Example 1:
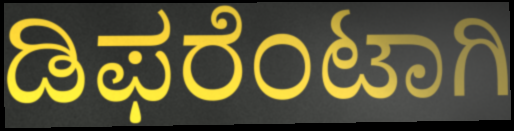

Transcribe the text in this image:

ಡಿಫರೆಂಟಾಗಿ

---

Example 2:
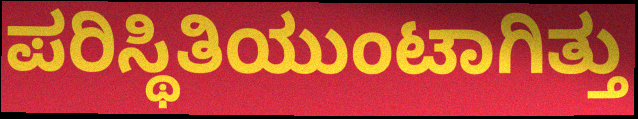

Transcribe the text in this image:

ಪರಿಸ್ಥಿತಿಯುಂಟಾಗಿತ್ತು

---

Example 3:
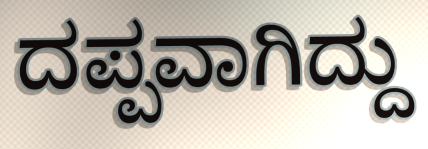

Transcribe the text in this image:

ದಪ್ಪವಾಗಿದ್ದು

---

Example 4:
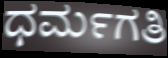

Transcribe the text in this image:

ಧರ್ಮಗತಿ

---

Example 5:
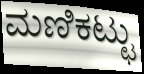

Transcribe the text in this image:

ಮಣಿಕಟ್ಟು